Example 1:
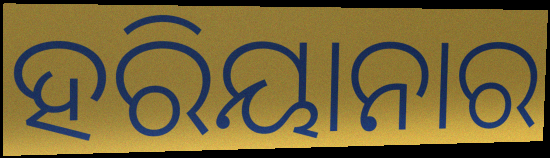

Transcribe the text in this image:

ହରିୟାନାର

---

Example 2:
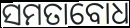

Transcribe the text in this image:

ସମତାବୋଧ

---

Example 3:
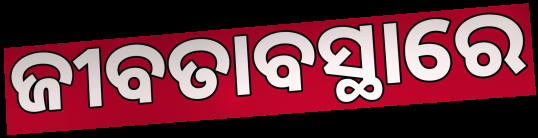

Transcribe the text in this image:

ଜୀବତାବସ୍ଥାରେ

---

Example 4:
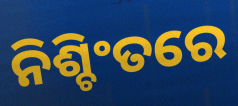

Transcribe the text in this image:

ନିଶ୍ଚିଂତରେ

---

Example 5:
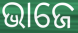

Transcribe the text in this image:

ଭାଜେ